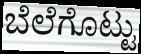
ಬೆಲೆಗೊಟ್ಟು